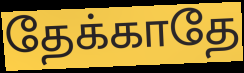
தேக்காதே